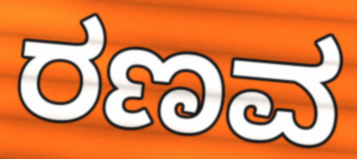
ರಣವ